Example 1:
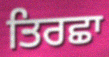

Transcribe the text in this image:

ਤਿਰਛਾ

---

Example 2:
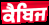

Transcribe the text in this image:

ਕੈਬਿਜ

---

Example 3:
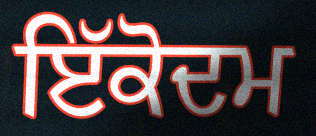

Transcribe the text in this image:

ਇੱਕੋਦਮ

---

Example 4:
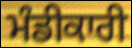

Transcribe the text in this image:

ਮੰਡੀਕਾਰੀ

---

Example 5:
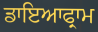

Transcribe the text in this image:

ਡਾਇਆਫ੍ਰਾਮ